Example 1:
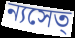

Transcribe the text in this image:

ন্যসেত্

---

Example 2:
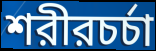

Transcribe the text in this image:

শরীরচর্চা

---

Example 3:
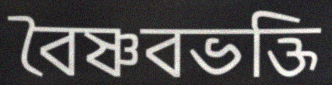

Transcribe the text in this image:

বৈষ্ণবভক্তি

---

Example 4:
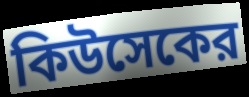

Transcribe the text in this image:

কিউসেকের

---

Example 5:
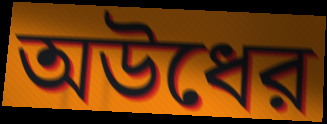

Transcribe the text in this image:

অউধের